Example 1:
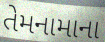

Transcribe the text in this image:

તેમનામાના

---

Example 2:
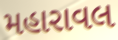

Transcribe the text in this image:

મહારાવલ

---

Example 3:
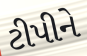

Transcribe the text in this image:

ટીપીને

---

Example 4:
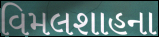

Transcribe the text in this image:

વિમલશાહના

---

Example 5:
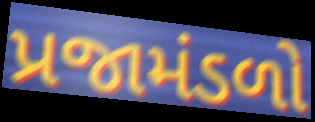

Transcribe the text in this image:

પ્રજામંડળો